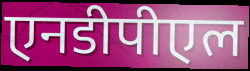
एनडीपीएल